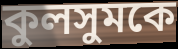
কুলসুমকে